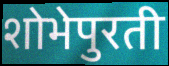
शोभेपुरती